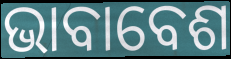
ଭାବାବେଶ